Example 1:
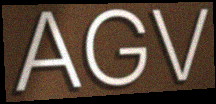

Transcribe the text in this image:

AGV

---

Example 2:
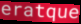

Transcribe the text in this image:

eratque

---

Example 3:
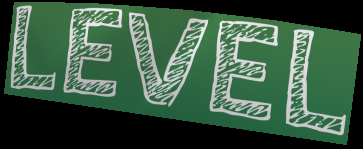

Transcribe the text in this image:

LEVEL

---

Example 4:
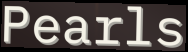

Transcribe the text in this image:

Pearls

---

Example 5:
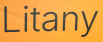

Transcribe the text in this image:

Litany